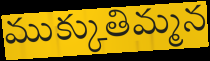
ముక్కుతిమ్మన